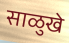
साळुखे